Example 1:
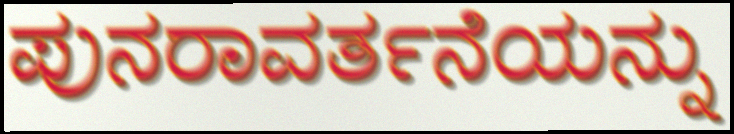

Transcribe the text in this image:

ಪುನರಾವರ್ತನೆಯನ್ನು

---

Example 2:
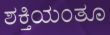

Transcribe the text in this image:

ಶಕ್ತಿಯಂತೂ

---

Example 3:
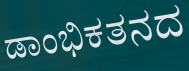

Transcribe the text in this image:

ಡಾಂಭಿಕತನದ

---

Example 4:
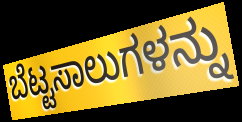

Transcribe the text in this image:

ಬೆಟ್ಟಸಾಲುಗಳನ್ನು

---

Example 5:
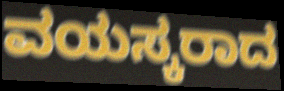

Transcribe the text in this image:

ವಯಸ್ಕರಾದ